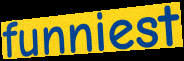
funniest